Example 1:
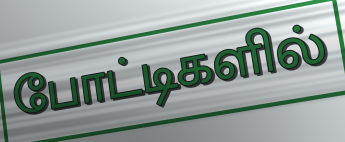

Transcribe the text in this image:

போட்டிகளில்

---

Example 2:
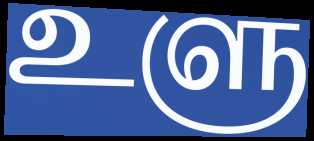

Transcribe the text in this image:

உளு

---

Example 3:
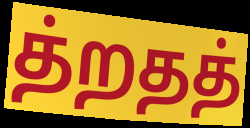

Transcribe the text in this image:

த்றதத்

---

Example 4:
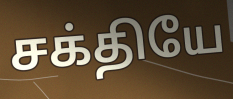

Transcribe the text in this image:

சக்தியே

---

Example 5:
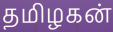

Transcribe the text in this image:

தமிழகன்